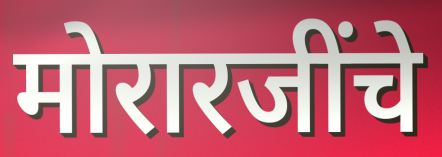
मोरारजींचे